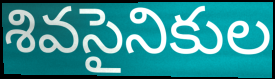
శివసైనికుల